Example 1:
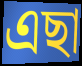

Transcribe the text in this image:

এছা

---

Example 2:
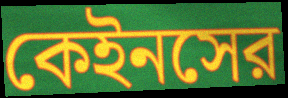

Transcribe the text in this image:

কেইনসের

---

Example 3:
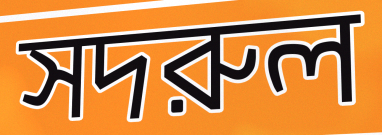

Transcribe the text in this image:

সদরুল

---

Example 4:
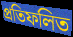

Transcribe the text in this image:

প্রতিফলিত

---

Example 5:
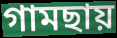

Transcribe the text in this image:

গামছায়